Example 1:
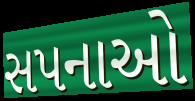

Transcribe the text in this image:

સપનાઓ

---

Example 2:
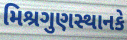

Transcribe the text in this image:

મિશ્રગુણસ્થાનકે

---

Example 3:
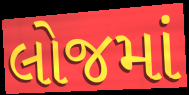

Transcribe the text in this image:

લોજમાં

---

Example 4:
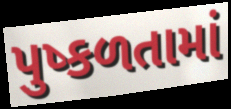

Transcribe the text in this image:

પુષ્કળતામાં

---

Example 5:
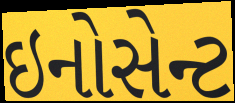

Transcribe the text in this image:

ઇનોસેન્ટ